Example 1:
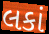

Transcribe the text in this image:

લકાં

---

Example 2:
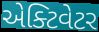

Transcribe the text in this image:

એક્ટિવેટર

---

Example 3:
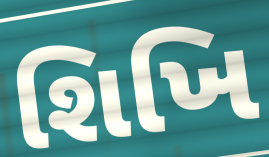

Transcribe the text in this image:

શિખિ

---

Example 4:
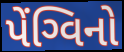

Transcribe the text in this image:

પેંગ્વિનો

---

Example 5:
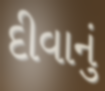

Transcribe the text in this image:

દીવાનું